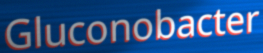
Gluconobacter